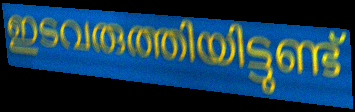
ഇടവരുത്തിയിട്ടുണ്ട്